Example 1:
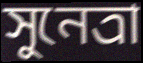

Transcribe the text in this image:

সুনেত্রা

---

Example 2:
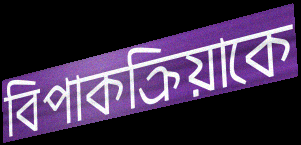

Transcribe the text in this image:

বিপাকক্রিয়াকে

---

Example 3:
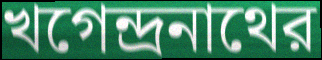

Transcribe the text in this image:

খগেন্দ্রনাথের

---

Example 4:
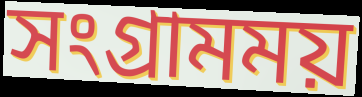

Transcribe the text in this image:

সংগ্রামময়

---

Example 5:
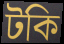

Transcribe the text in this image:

টকি